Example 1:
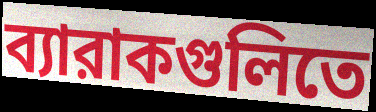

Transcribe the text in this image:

ব্যারাকগুলিতে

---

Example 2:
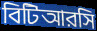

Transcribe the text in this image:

বিটিআরসি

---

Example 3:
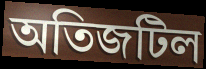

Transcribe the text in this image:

অতিজটিল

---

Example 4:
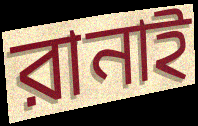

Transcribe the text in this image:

রানাই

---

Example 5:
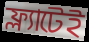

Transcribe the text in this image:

ফ্ল্যাটেই